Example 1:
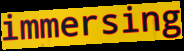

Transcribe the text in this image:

immersing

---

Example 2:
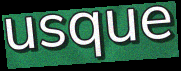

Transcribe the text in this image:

usque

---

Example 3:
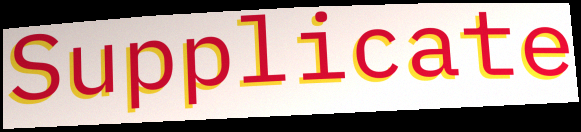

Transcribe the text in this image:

Supplicate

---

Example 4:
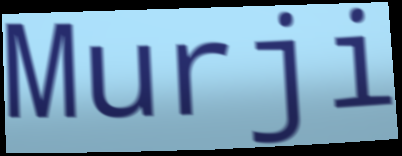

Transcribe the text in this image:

Murji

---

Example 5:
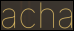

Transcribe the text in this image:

acha